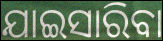
ଯାଇସାରିବା